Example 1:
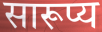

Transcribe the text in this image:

सारूप्य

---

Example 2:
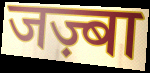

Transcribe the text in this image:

जज़्बा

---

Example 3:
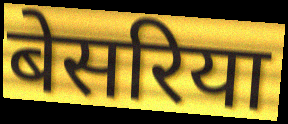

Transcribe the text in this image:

बेसरिया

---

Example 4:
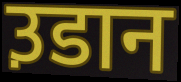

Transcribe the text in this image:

उ़डान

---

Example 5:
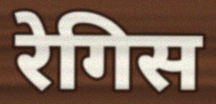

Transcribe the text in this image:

रेगिस